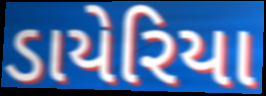
ડાયેરિયા